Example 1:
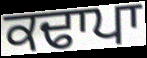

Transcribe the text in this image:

ਕਢਾਪਾ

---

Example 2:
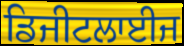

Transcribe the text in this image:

ਡਿਜੀਟਲਾਈਜ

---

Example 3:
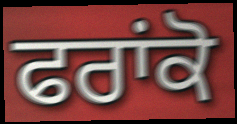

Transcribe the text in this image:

ਫਰਾਂਕੋ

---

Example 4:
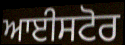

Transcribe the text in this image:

ਆਈਸਟੋਰ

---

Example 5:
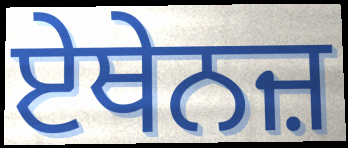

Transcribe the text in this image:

ਏਥੇਨਜ਼